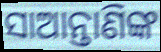
ସାଆନ୍ତାଣିଙ୍କ